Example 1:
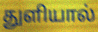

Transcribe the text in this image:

துளியால்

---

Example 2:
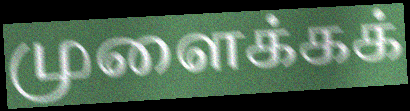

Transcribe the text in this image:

முளைக்கக்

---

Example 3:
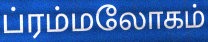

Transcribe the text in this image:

ப்ரம்மலோகம்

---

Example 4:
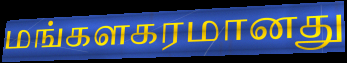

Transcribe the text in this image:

மங்களகரமானது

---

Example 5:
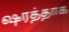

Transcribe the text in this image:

ஷரத்தாக